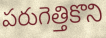
పరుగెత్తికొని